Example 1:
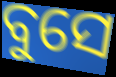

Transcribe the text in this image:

ବୁସେ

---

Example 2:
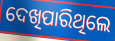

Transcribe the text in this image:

ଦେଖିପାରିଥିଲେ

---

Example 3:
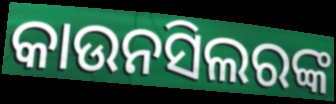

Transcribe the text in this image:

କାଉନସିଲରଙ୍କ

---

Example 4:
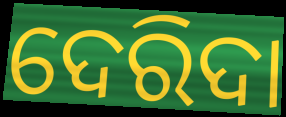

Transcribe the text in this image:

ଦେରିଦା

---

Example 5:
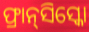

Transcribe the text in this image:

ଫ୍ରାନ୍‌ସିସ୍କୋ